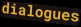
dialogues